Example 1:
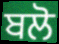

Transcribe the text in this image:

ਬਲੋ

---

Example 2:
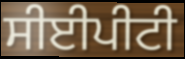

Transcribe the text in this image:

ਸੀਈਪੀਟੀ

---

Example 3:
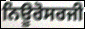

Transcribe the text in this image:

ਨਿਊਰੋਸਰਜੀ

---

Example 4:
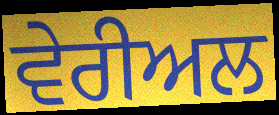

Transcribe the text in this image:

ਵੇਰੀਅਲ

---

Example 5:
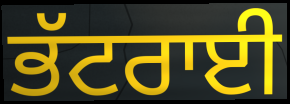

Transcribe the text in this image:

ਭੱਟਰਾਈ